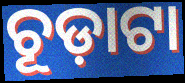
ଚୂଡ଼ାଟା